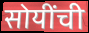
सोयींची